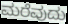
ಮರೆವುದು